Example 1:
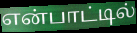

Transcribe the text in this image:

என்பாட்டில்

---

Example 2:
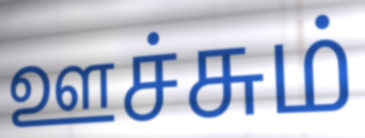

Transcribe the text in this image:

ஊச்சும்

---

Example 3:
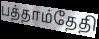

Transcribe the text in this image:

பத்தாம்தேதி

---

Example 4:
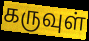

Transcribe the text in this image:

கருவுள்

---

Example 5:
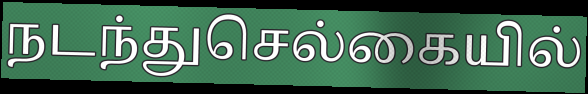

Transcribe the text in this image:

நடந்துசெல்கையில்